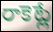
రాకెట్లే